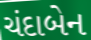
ચંદાબેન